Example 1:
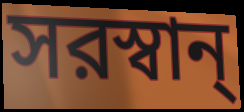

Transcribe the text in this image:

সরস্বান্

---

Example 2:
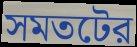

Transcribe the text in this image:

সমতটের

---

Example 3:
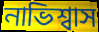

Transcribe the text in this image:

নাভিশ্বাস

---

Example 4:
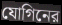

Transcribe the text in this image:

যোগিনের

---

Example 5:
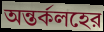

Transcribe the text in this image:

অন্তর্কলহের